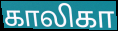
காலிகா